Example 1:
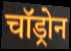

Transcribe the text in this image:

चॉड्रोन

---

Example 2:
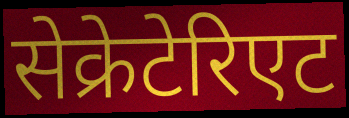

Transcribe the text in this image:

सेक्रेटेरिएट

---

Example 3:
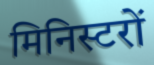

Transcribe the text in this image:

मिनिस्टरों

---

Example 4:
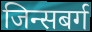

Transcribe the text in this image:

जिन्सबर्ग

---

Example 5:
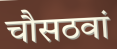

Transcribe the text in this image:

चौसठवां